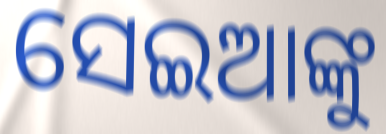
ସେଇଆଙ୍କୁ